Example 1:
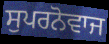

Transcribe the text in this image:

ਸੁਪਰਨੋਵਾਜ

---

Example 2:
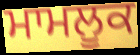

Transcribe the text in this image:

ਮਾਮਲੂਕ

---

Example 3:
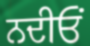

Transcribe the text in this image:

ਨਦੀਓਂ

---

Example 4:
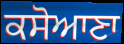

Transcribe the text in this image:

ਕਸੋਆਣਾ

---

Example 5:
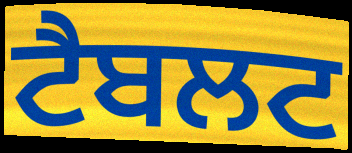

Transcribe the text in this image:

ਟੈਬਲਟ